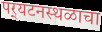
पर्यटनस्थळाचा